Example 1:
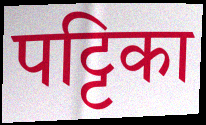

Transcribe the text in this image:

पट्टिका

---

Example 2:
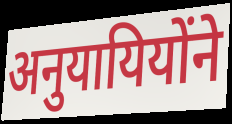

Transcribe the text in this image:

अनुयायियोंने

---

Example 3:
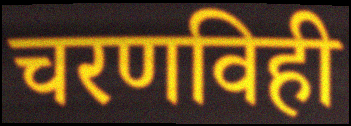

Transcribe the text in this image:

चरणविही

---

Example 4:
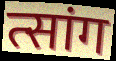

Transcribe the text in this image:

त्सांग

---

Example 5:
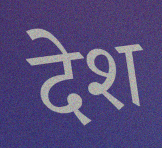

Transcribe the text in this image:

देश